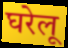
घरेलू